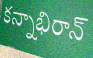
కన్నాభిరాన్